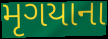
મૃગયાના